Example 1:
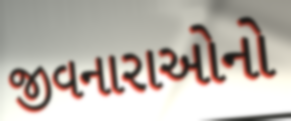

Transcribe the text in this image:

જીવનારાઓનો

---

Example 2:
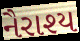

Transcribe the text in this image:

નૈરાશ્ય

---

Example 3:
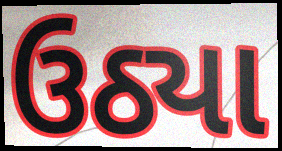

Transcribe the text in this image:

ઉઠ્યા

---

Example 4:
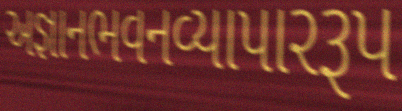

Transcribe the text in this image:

અજ્ઞાનભવનવ્યાપારરૂપ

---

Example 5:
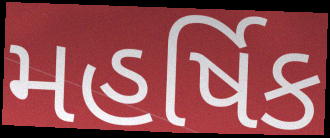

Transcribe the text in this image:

મહર્ષિક